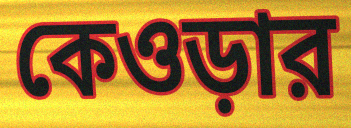
কেওড়ার